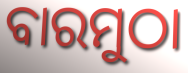
ବାରମୁଠା